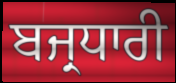
ਬਜ੍ਰਧਾਰੀ